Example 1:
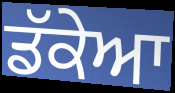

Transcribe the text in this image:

ਡੱਕੇਆ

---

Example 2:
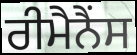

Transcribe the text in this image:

ਰੀਮੈਨੈਂਸ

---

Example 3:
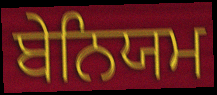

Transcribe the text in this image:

ਬੇਨਿਯਮ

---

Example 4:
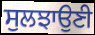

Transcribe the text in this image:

ਸੁਲਝਾਉਣੀ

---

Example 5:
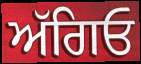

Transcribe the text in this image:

ਅੱਗਿਓ